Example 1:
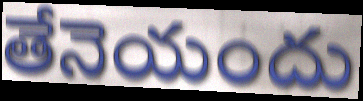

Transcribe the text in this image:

తేనెయందు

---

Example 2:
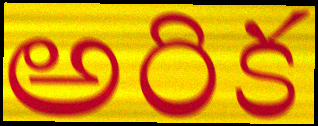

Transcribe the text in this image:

అరిక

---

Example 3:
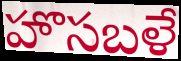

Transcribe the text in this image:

హొసబళే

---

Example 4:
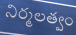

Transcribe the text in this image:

నిర్మలత్వం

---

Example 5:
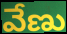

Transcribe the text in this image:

వేణు